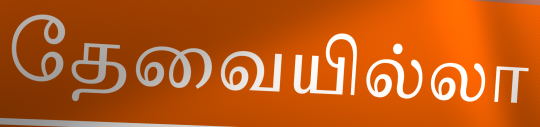
தேவையில்லா